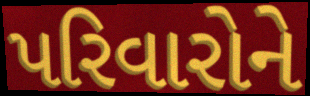
પરિવારોને